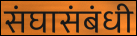
संघासंबंधी